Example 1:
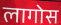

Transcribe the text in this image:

लागोस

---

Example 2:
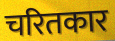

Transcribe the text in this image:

चरितकार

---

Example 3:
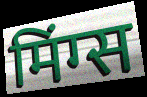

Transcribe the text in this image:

मिंग्स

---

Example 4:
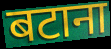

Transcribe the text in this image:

बटाना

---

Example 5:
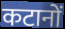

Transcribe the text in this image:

कटानों